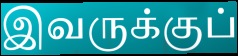
இவருக்குப்